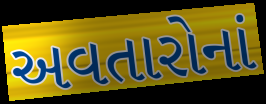
અવતારોનાં